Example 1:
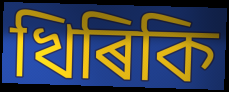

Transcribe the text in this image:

খিৰিকি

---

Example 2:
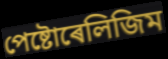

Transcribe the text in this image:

পেষ্টোৰেলিজিম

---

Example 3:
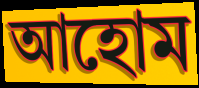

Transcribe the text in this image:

আহোম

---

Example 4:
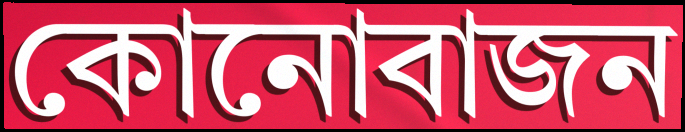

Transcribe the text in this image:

কোনোবাজন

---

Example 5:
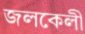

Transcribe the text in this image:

জলকেলী